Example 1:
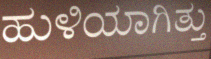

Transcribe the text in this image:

ಹುಳಿಯಾಗಿತ್ತು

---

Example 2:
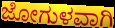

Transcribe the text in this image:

ಜೋಗುಳವಾಗಿ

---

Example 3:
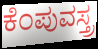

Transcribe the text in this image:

ಕೆಂಪುವಸ್ತ್ರ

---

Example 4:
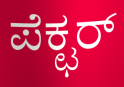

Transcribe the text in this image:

ಪೆಕ್ಟರ್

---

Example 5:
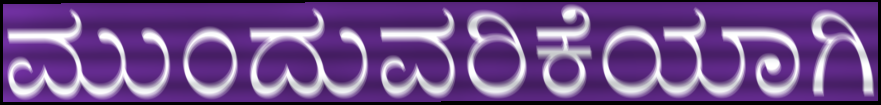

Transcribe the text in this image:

ಮುಂದುವರಿಕೆಯಾಗಿ